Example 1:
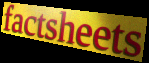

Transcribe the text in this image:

factsheets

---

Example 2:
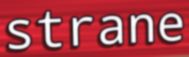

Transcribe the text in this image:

strane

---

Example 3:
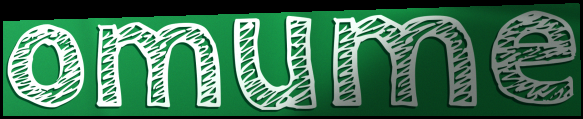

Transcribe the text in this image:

omume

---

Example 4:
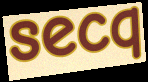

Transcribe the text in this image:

secq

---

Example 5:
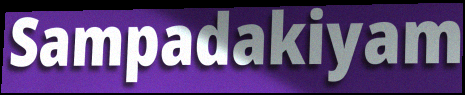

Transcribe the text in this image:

Sampadakiyam